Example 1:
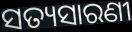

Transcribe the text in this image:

ସତ୍ୟସାରଣୀ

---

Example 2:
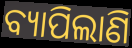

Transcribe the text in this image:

ବ୍ୟାପିଲାଣି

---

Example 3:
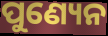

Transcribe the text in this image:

ପୁଣ୍ୟେନ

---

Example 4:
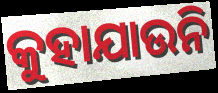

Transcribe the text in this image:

କୁହାଯାଉନି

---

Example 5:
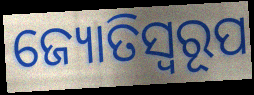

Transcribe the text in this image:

ଜ୍ୟୋତିସ୍ୱରୂପ